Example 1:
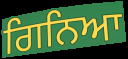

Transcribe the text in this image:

ਗਿਨਿਆ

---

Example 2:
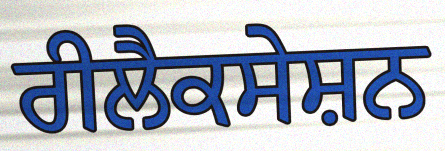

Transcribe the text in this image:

ਰੀਲੈਕਸੇਸ਼ਨ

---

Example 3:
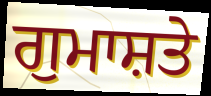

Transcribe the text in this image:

ਗੁਮਾਸ਼ਤੇ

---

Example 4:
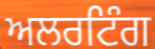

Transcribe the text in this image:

ਅਲਰਟਿੰਗ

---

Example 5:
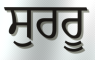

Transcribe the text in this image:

ਸੁਰਰੂ